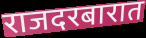
राजदरबारात